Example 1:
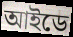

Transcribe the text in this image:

আইডে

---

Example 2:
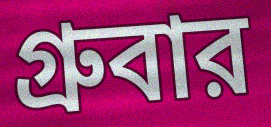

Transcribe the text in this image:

গ্রুবার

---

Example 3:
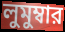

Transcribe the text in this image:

লুমুম্বার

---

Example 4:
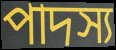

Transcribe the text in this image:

পাদস্য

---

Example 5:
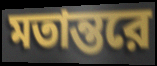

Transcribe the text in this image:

মতান্তরে